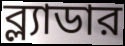
ব্ল্যাডার